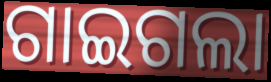
ଗାଇଗଲା